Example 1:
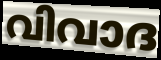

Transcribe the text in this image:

വിവാദ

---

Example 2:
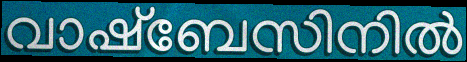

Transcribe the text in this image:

വാഷ്ബേസിനിൽ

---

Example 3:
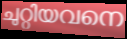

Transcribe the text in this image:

ചുറ്റിയവനെ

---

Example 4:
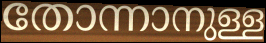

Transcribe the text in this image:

തോന്നാനുള്ള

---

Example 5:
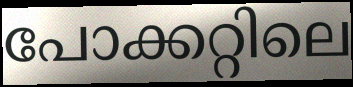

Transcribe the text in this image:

പോക്കറ്റിലെ